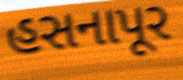
હસનાપૂર